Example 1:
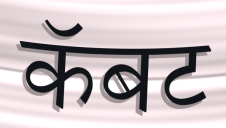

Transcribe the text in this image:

कॅबट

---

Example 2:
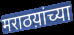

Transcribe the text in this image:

मराठय़ांच्या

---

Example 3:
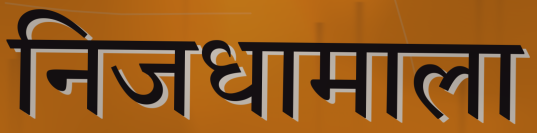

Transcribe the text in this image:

निजधामाला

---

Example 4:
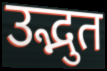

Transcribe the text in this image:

उद्भुत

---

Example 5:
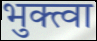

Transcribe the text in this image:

भुक्त्वा